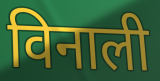
विनाली